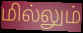
மில்லும்